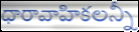
ధారావాహికలన్నీ